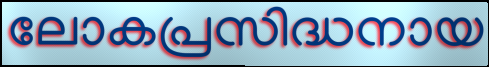
ലോകപ്രസിദ്ധനായ